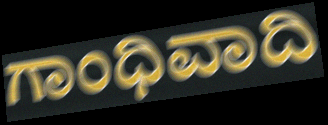
ಗಾಂಧಿವಾದಿ